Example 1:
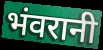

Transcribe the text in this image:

भंवरानी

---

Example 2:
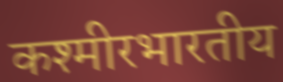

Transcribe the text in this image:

कश्मीरभारतीय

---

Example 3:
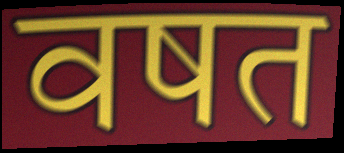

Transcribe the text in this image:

वषत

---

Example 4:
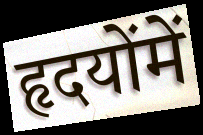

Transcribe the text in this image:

हृदयोंमें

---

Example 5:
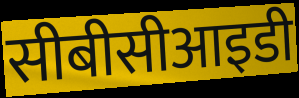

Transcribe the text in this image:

सीबीसीआइडी